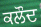
ਕਲੌਦ